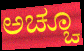
ಅಚ್ಚೂ